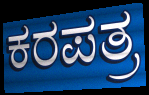
ಕರಪತ್ರ